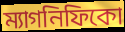
ম্যাগনিফিকো